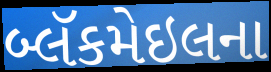
બ્લૅકમેઇલના